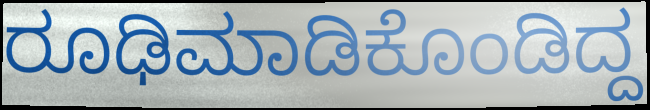
ರೂಢಿಮಾಡಿಕೊಂಡಿದ್ದ